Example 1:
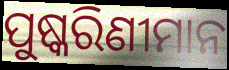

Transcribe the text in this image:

ପୁଷ୍କରିଣୀମାନ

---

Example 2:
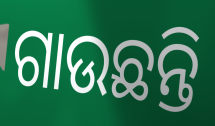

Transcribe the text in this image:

ଗାଉଛନ୍ତି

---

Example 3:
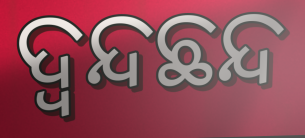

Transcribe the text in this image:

ଦ୍ୱନ୍ଦଛନ୍ଦ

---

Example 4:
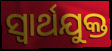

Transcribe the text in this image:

ସ୍ୱାର୍ଥଯୁକ୍ତ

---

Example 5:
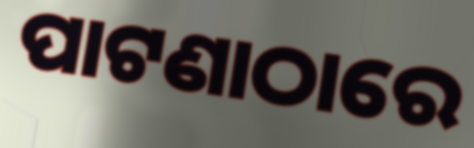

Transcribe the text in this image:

ପାଟଣାଠାରେ